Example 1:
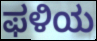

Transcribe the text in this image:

ಫಳಿಯ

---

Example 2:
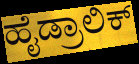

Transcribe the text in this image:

ಹೈಡ್ರಾಲಿಕ್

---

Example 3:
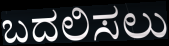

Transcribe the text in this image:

ಬದಲಿಸಲು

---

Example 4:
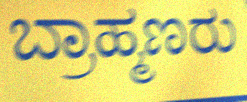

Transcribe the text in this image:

ಬ್ರಾಹ್ಮಣರು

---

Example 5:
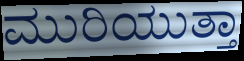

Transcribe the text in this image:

ಮುರಿಯುತ್ತಾ